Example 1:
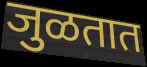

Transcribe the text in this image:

जुळतात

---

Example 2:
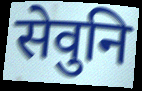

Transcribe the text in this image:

सेवुनि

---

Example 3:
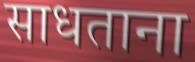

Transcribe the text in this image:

साधताना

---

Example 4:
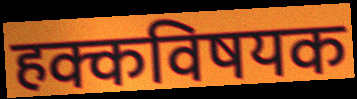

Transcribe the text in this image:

हक्कविषयक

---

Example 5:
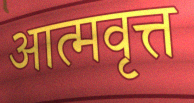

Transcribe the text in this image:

आत्मवृत्त